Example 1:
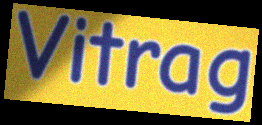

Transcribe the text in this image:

Vitrag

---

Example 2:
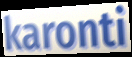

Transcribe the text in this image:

karonti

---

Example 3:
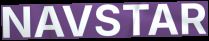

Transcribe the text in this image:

NAVSTAR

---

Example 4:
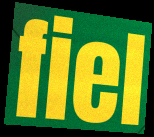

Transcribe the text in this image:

fiel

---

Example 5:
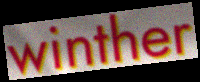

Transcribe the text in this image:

winther